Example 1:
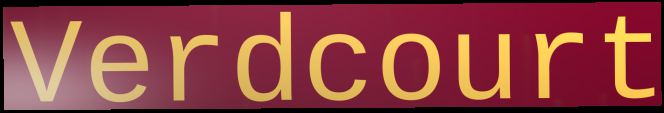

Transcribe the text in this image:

Verdcourt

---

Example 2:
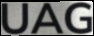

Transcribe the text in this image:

UAG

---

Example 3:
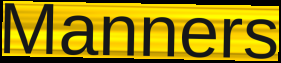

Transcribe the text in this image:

Manners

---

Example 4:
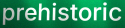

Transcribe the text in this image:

prehistoric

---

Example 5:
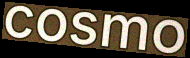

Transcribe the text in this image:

cosmo